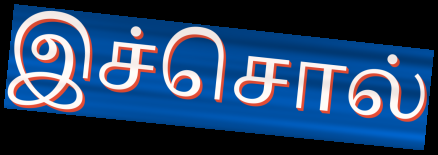
இச்சொல்